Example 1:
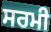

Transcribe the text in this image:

ਸਰਮੀ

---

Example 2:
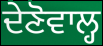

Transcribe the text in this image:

ਦੇਣੋਵਾਲ੍ਹ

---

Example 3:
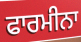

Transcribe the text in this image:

ਫਾਰਮੀਨਾ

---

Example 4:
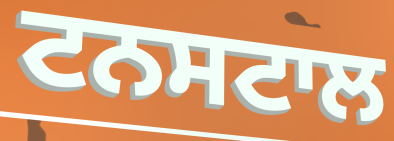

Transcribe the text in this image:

ਟਨਸਟਾਲ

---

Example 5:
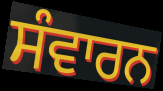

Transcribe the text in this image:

ਸੰਵਾਰਨ